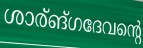
ശാര്ങ്ഗദേവന്റെ